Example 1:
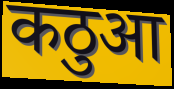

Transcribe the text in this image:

कठुआ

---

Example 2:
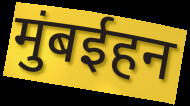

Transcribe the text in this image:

मुंबईहन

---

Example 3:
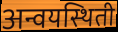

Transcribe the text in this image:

अन्वयस्थिती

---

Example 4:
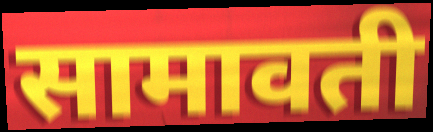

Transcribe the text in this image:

सामावती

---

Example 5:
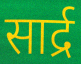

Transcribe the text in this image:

सार्द्र